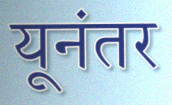
यूनंतर